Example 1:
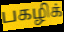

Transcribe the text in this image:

பகழிக்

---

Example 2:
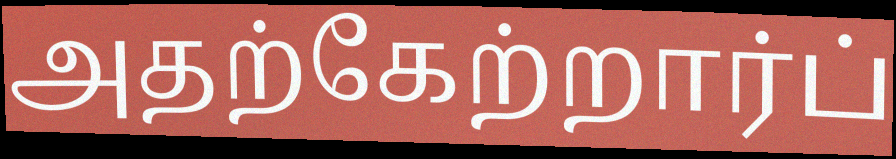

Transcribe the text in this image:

அதற்கேற்றார்ப்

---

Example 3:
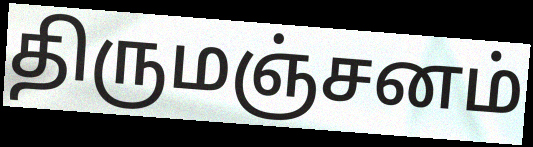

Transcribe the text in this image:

திருமஞ்சனம்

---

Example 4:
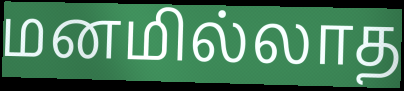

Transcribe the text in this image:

மனமில்லாத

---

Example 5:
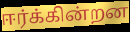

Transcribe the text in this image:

ஈர்க்கின்றன